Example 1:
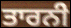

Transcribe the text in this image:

ਤਾਰਨੀ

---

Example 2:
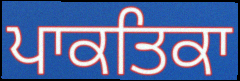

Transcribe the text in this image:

ਪਾਕਤਿਕਾ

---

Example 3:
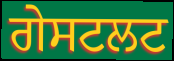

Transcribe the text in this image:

ਗੇਸਟਲਟ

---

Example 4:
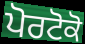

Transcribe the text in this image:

ਪੋਰਟੋਕੋ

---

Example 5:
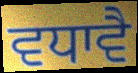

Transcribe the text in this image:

ਵਧਾਵੈ